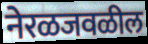
नेरळजवळील